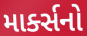
માર્ક્સનો